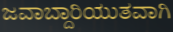
ಜವಾಬ್ದಾರಿಯುತವಾಗಿ